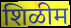
शिळीम